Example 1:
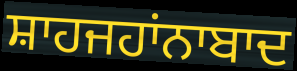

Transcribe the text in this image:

ਸ਼ਾਹਜਹਾਂਨਾਬਾਦ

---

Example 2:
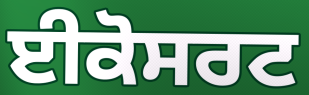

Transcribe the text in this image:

ਈਕੋਸਰਟ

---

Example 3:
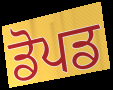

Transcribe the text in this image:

ਡੋਪਡ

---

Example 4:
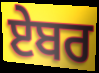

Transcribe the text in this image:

ਏਬਰ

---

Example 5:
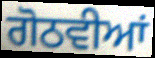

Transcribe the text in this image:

ਗੋਠਵੀਆਂ